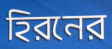
হিরনের